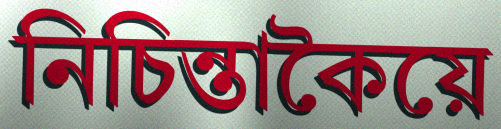
নিচিন্তাকৈয়ে